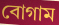
বোগাম